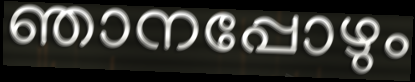
ഞാനപ്പോഴും